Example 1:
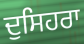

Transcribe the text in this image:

ਦੁਸਿਹਰਾ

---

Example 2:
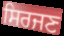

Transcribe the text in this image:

ਸਿਰਜਣ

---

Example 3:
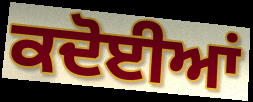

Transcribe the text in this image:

ਕਦੋਈਆਂ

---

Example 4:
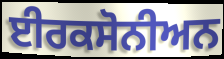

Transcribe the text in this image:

ਈਰਕਸੋਨੀਅਨ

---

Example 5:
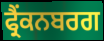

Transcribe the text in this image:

ਫ੍ਰੈਂਕਨਬਰਗ